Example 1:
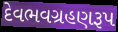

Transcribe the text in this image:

દેવભવગ્રહણરૂપ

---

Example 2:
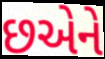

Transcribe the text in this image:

છએને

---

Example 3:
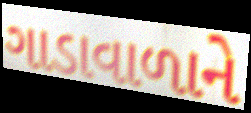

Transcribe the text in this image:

ગાડાવાળાને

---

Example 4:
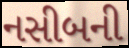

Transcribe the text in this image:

નસીબની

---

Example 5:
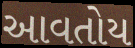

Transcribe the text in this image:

આવતોય